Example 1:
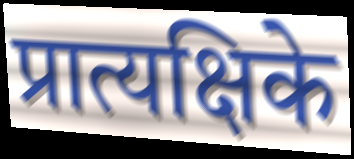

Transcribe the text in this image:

प्रात्यक्षिके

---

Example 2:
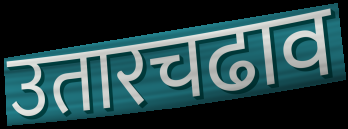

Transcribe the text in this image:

उतारचढाव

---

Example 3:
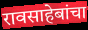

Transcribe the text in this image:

रावसाहेबांचा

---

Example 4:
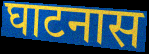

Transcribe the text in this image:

घाटनास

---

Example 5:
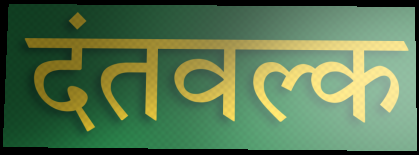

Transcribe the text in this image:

दंतवल्क